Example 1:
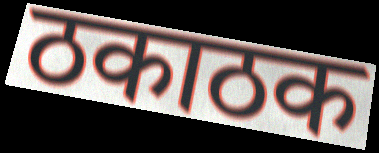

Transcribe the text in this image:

ठकाठक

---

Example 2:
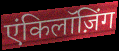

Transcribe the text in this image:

एंकिलॉज़िंग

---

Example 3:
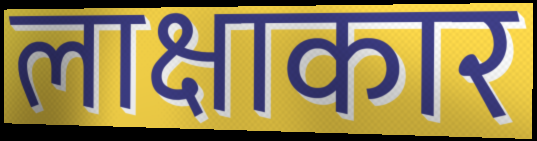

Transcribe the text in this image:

लाक्षाकार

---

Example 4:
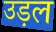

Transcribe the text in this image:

उड़ल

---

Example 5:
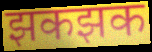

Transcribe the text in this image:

झकझक